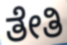
ತೇತಿ